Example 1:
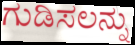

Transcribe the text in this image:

ಗುಡಿಸಲನ್ನು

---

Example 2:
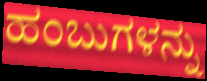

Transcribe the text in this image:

ಹಂಬುಗಳನ್ನು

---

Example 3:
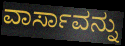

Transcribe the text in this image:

ವಾರ್ಸಾವನ್ನು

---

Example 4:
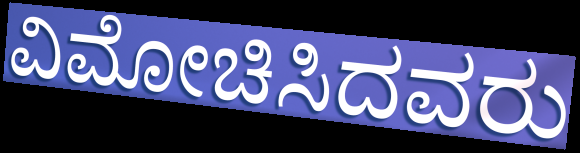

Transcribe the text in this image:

ವಿಮೋಚಿಸಿದವರು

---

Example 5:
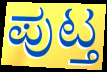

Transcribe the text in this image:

ಪುಟ್ತ